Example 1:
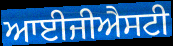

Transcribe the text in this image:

ਆਈਜੀਐਸਟੀ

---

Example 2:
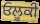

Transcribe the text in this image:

ਓਲੂਕੀ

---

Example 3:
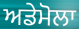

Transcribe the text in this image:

ਅਡੇਮੋਲਾ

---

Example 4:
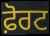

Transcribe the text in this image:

ਫ਼ੋਰਟ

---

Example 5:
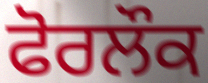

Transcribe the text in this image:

ਫੋਰਲੌਕ